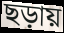
ছড়ায়